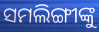
ସମଲିଙ୍ଗୀଙ୍କୁ